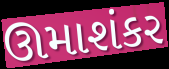
ઊમાશંકર